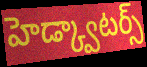
హెడ్క్వాటర్స్